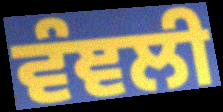
ਵੰਞਲੀ